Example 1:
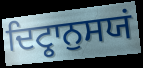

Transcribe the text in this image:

ਦਿਟ੍ਠਾਨੁਸਯਂ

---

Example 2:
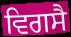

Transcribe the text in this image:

ਵਿਗਸੈ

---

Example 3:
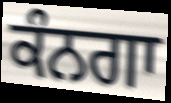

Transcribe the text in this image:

ਕੰਨਗਾ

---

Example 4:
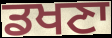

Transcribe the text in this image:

ਡਖਣਾ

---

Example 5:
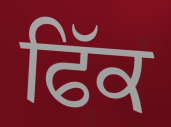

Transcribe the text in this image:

ਫਿੱਕ